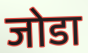
जोडा